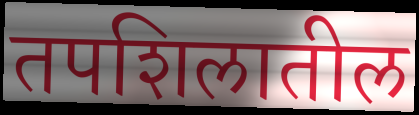
तपशिलातील